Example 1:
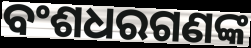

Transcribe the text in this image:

ବଂଶଧରଗଣଙ୍କ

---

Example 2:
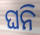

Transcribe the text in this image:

ଘନି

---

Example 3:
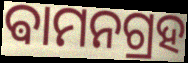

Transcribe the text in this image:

ଵାମନଗ୍ରହ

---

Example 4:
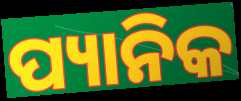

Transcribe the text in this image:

ପ୍ୟାନିକ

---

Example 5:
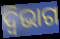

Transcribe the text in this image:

ଦ୍ୱିଭାଗ